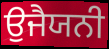
ਉਜੈਯਨੀ